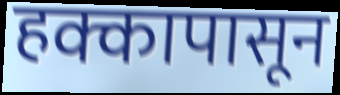
हक्कापासून